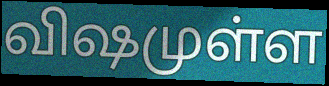
விஷமுள்ள